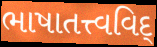
ભાષાતત્ત્વવિદ્